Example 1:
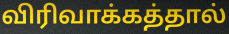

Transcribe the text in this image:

விரிவாக்கத்தால்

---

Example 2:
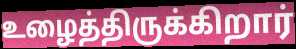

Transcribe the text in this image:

உழைத்திருக்கிறார்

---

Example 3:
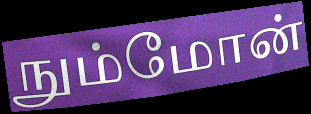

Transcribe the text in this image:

நும்மோன்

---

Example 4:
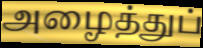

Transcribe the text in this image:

அழைத்துப்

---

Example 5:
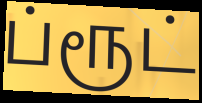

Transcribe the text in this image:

ப்ரூட்